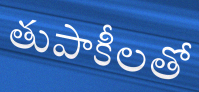
తుపాకీలతో